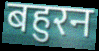
बहुरन